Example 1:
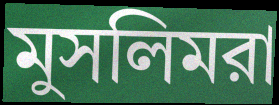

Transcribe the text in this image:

মুসলিমরা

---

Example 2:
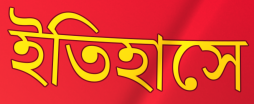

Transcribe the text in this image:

ইতিহাসে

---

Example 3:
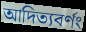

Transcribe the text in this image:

আদিত্যবর্ণং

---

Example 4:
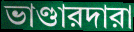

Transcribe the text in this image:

ভাণ্ডারদারা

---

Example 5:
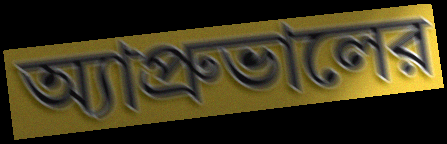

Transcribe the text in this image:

অ্যাপ্রুভালের